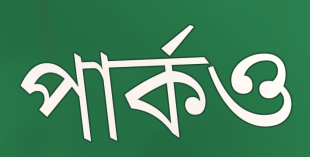
পার্কও